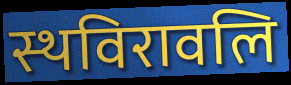
स्थविरावलि